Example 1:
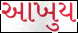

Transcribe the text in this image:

આખુય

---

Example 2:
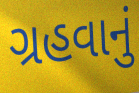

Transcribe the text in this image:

ગ્રહવાનું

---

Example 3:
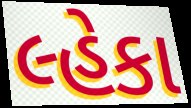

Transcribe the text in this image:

લ્હેકા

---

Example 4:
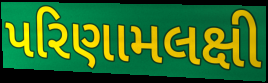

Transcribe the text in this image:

પરિણામલક્ષી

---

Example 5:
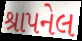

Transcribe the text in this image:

શ્રાપનેલ